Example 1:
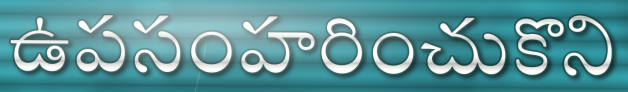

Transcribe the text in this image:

ఉపసంహరించుకొని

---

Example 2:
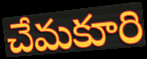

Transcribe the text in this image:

చేమకూరి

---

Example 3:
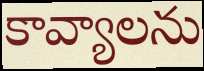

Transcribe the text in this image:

కావ్యాలను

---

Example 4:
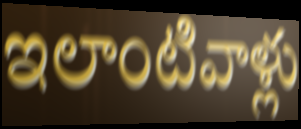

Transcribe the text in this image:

ఇలాంటివాళ్లు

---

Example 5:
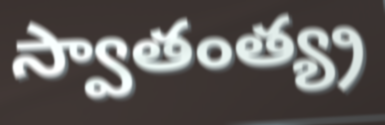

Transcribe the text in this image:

స్వాతంత్య్ర